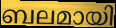
ബലമായി